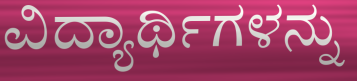
ವಿದ್ಯಾರ್ಥಿಗಳನ್ನು